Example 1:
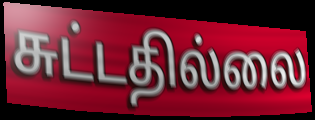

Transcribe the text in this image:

சுட்டதில்லை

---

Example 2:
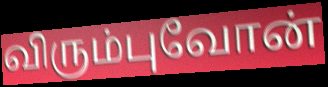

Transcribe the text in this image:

விரும்புவோன்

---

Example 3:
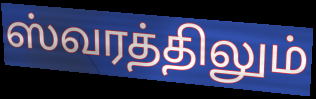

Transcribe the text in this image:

ஸ்வரத்திலும்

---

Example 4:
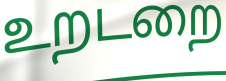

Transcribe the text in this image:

உறடறை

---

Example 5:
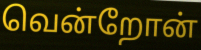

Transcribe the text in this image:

வென்றோன்